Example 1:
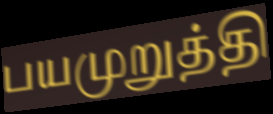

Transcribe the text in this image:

பயமுறுத்தி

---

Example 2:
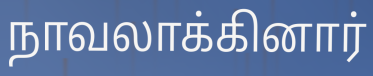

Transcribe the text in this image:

நாவலாக்கினார்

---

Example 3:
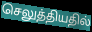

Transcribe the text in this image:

செலுத்தியதில்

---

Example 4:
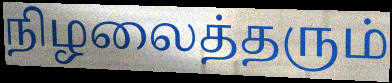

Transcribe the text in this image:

நிழலைத்தரும்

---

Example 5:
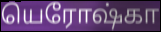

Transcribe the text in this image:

யெரோஷ்கா